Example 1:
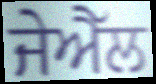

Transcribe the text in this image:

ਜੇਐੱਲ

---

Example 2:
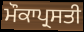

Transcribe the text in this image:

ਮੌਕਾਪ੍ਰਸਤੀ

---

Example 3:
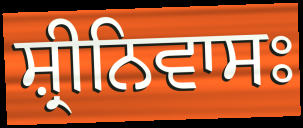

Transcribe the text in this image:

ਸ਼੍ਰੀਨਿਵਾਸਃ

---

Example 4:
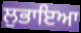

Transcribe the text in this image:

ਲੁਭਾਇਆ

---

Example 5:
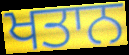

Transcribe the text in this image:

ਖਤਾਨ